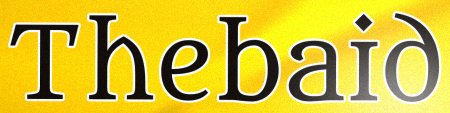
Thebaid